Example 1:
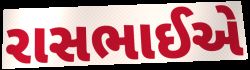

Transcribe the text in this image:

રાસભાઈએ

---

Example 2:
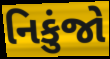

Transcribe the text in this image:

નિકુંજો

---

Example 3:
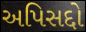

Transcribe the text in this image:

અપિસદ્દો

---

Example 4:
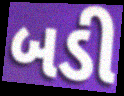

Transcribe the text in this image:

બડી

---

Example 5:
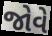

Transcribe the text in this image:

જોવે